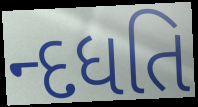
ન્દધતિ